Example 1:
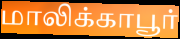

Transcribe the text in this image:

மாலிக்காபூர்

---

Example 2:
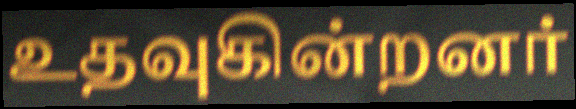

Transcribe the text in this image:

உதவுகின்றனர்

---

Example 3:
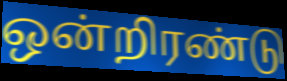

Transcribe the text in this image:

ஒன்றிரண்டு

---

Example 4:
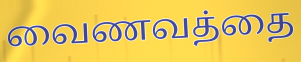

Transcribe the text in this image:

வைணவத்தை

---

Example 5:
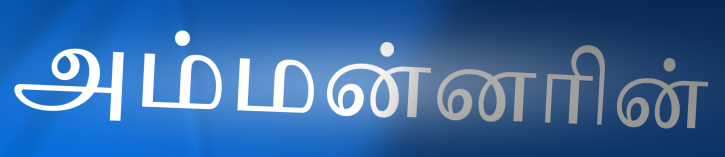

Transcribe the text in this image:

அம்மன்னரின்